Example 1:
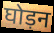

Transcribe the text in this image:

घोड़न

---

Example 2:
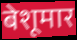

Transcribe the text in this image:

बेशूमार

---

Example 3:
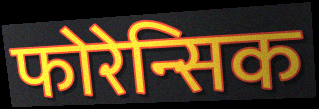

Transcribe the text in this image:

फोरेन्सिक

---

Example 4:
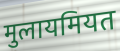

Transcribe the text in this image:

मुलायमियत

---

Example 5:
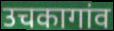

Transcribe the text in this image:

उचकागांव